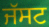
ਜੱਸਟ